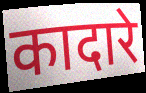
कादारे